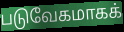
படுவேகமாகக்